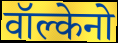
वॉल्केनो